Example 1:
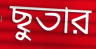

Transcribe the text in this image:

ছুতার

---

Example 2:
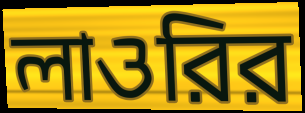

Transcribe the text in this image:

লাওরির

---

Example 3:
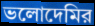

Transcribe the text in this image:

ভলোদেমির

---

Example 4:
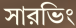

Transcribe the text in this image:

সারভিং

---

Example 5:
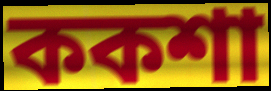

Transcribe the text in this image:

ককশা